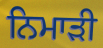
ਨਿਮਾੜੀ